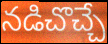
నడిచొచ్చే